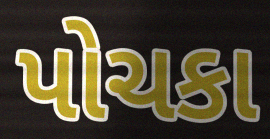
પોચકા